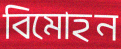
বিমোহন